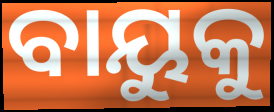
ବାୟୁକୁ